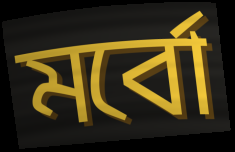
মর্বো